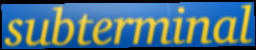
subterminal